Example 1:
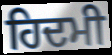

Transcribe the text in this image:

ਹਿਦਮੀ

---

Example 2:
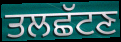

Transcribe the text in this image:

ਤਲਛੱਟਣ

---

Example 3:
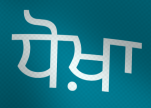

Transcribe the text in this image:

ਧੋਖ਼ਾ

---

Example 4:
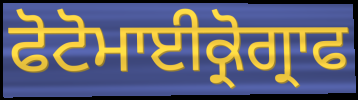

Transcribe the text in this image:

ਫੋਟੋਮਾਈਕ੍ਰੋਗ੍ਰਾਫ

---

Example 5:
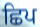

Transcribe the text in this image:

ਛਿਪ